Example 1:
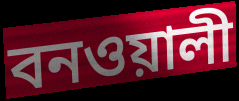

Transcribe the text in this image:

বনওয়ালী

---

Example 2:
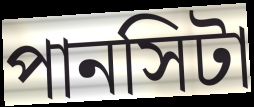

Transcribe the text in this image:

পানসিটা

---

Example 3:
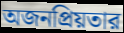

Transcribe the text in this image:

অজনপ্রিয়তার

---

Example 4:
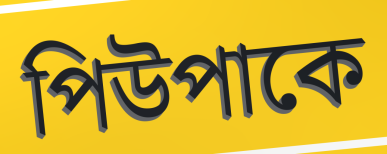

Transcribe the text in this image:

পিউপাকে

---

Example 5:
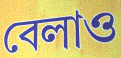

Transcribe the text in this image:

বেলাও